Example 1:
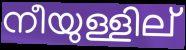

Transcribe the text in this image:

നീയുള്ളില്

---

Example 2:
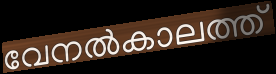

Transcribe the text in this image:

വേനൽകാലത്ത്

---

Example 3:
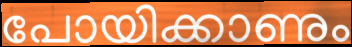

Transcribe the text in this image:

പോയിക്കാണും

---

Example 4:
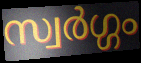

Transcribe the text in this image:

സ്വർഗ്ഗം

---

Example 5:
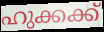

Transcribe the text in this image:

ഹുക്കക്ക്